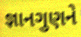
જ્ઞાનગુણને